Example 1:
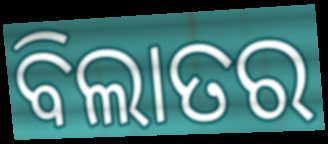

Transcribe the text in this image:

ବିଲାତର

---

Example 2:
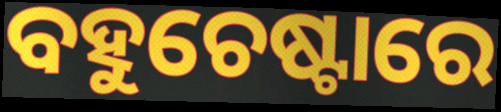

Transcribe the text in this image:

ବହୁଚେଷ୍ଟାରେ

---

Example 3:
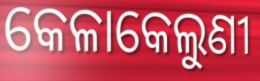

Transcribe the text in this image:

କେଳାକେଲୁଣୀ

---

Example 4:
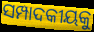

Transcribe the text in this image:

ସମ୍ପାଦକୀୟକୁ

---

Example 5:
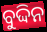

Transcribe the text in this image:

ବୁଦ୍ଦିନ